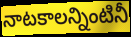
నాటకాలన్నింటినీ